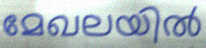
മേഖലയിൽ